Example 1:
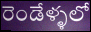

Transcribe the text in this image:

రెండేళ్ళలో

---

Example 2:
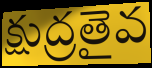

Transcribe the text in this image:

క్షుద్రతైవ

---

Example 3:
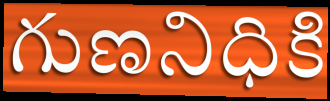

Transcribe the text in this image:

గుణనిధికి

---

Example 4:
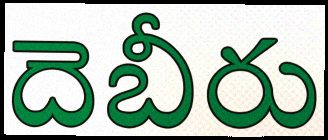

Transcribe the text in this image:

దెబీరు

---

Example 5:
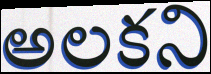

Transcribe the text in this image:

అలకని